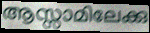
ആസ്സാമിലേക്കു